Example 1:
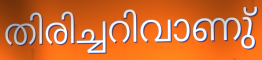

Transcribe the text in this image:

തിരിച്ചറിവാണു്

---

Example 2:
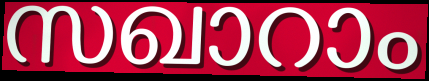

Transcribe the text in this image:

സഖാറാം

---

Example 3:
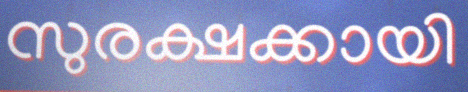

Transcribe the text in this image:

സുരക്ഷക്കായി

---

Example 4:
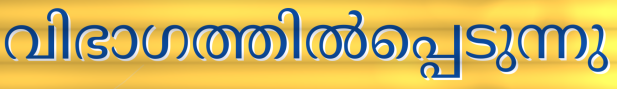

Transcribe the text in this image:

വിഭാഗത്തിൽപ്പെടുന്നു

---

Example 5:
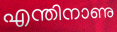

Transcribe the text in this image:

എന്തിനാണു